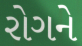
રોગને